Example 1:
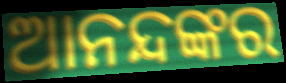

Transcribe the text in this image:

ଆନନ୍ଦଙ୍କର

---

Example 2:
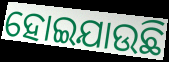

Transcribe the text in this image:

ହୋଇଯାଉଛି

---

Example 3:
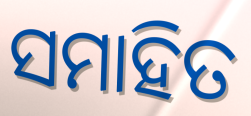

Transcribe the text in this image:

ସମାହିତ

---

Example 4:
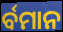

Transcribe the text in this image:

ର୍ବମାନ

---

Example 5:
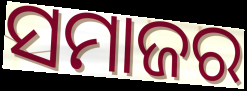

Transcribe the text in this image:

ସମାଜର